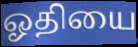
ஓதியை